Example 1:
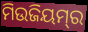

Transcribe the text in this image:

ମିଉଜିୟମ୍‌ର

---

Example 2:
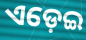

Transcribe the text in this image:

ଏଡ଼େଇ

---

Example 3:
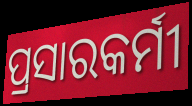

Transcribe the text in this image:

ପ୍ରସାରକର୍ମୀ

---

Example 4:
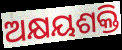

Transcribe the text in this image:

ଅକ୍ଷୟଶକ୍ତି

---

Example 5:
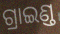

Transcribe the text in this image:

ଗ୍ରାଇଣ୍ଡ